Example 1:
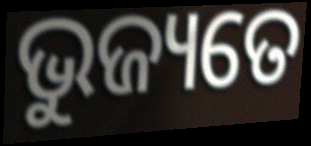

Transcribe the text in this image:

ଭୁଜ୍ୟତେ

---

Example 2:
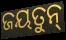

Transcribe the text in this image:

ଜୟତୁନ୍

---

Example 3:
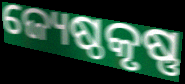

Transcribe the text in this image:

ଜ୍ୟେଷ୍ଠକୃଷ୍ଣ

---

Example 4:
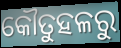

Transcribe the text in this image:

କୌତୁହଳରୁ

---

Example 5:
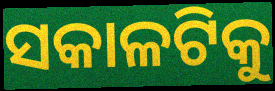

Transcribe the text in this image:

ସକାଳଟିକୁ